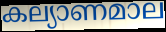
കല്യാണമാല